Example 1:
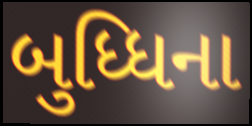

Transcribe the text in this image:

બુધ્ધિના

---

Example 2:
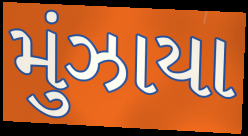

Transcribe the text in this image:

મુંઝાયા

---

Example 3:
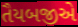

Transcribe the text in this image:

તૈયબજીએ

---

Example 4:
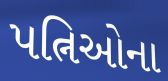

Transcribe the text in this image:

પત્નિઓના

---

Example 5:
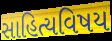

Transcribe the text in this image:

સાહિત્યવિષય